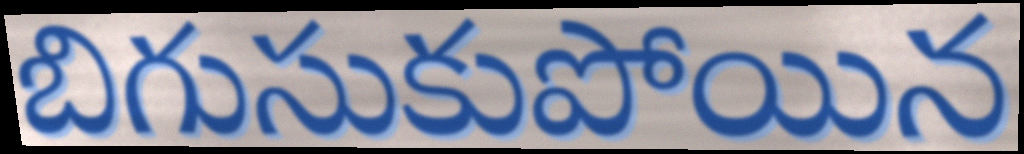
బిగుసుకుపోయిన